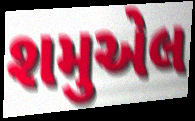
શમુએલ